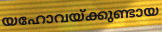
യഹോവയ്ക്കുണ്ടായ